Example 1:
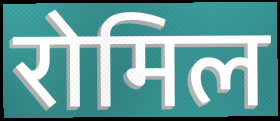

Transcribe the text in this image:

रोमिल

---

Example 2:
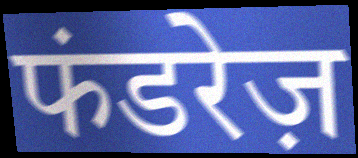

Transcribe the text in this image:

फंडरेज़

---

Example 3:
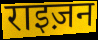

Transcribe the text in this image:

राइज़न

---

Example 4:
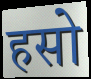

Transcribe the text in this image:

हसो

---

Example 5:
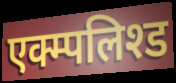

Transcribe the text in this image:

एक्म्पलिश्ड